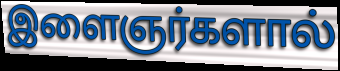
இளைஞர்களால்